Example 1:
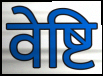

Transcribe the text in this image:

वेष्टि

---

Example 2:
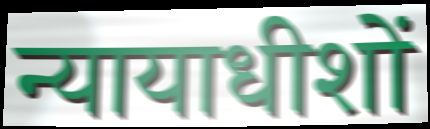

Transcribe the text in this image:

न्यायाधीशों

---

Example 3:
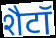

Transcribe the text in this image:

शैटॉ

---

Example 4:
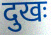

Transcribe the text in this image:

दुखः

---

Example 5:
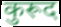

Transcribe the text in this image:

कुरूद